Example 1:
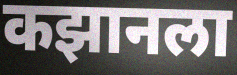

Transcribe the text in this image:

कझानला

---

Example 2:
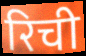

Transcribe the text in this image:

रिची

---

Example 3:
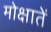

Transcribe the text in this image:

मोक्षातें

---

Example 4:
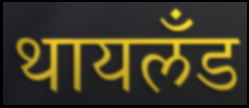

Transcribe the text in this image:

थायलँड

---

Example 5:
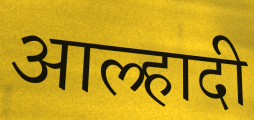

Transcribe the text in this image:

आल्हादी